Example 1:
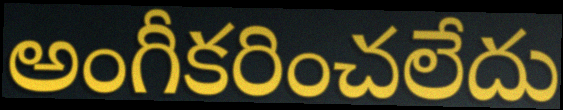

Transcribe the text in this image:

అంగీకరించలేదు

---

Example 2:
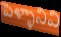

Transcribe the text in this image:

పెళ్ళానివి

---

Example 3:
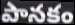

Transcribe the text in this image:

పానకం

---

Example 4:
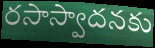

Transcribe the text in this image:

రసాస్వాదనకు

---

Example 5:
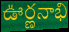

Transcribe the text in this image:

ఊర్ణనాభి